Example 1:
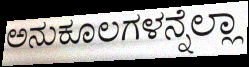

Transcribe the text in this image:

ಅನುಕೂಲಗಳನ್ನೆಲ್ಲಾ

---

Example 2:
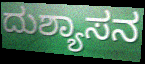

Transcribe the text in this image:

ದುಶ್ಯಾಸನ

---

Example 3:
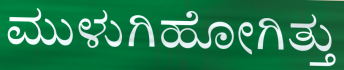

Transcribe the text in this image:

ಮುಳುಗಿಹೋಗಿತ್ತು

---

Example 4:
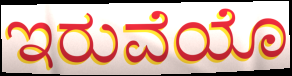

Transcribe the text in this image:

ಇರುವೆಯೊ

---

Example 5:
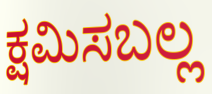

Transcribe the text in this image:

ಕ್ಷಮಿಸಬಲ್ಲ